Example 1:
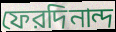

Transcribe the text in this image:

ফেরদিনান্দ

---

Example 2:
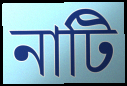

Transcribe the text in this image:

নাটি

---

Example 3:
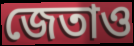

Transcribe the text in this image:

জেতাও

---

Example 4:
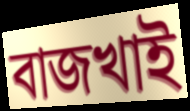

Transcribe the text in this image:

বাজখাই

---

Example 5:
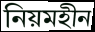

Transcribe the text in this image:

নিয়মহীন